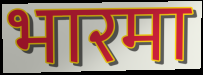
भारमा